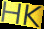
HK